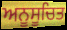
ਅਨੂਸੂਚਿਤ